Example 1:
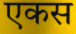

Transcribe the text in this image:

एकस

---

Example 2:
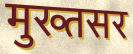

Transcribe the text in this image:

मुख्तसर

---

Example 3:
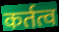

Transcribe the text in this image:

कर्तत्व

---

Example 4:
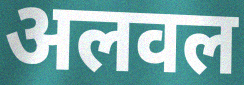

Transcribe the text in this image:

अलवल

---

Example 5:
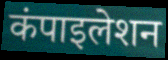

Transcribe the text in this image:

कंपाइलेशन